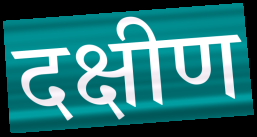
दक्षीण